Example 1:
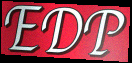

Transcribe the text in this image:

EDP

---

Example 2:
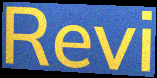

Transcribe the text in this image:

Revi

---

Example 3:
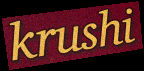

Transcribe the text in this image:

krushi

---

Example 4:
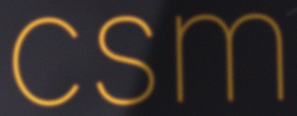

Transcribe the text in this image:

csm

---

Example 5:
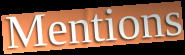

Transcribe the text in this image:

Mentions